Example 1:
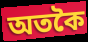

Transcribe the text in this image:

অতকৈ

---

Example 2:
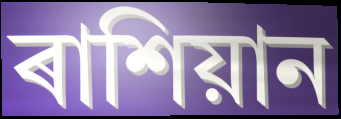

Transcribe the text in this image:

ৰাশিয়ান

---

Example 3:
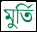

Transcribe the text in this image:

মুৰ্তি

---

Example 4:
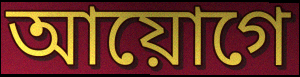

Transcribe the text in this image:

আয়োগে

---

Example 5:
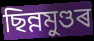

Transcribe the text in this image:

ছিন্নমুণ্ডৰ